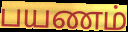
பயணம்